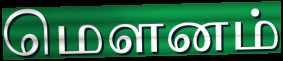
மெளனம்